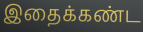
இதைக்கண்ட